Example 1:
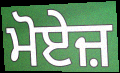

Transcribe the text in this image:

ਮੋਏਜ਼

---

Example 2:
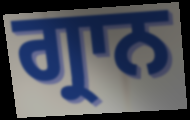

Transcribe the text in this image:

ਗ੍ਰਾਨ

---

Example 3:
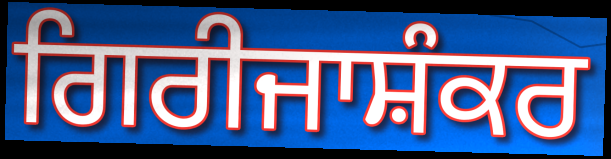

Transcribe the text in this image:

ਗਿਰੀਜਾਸ਼ੰਕਰ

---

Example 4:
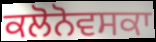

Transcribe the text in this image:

ਕਲੋਨੋਵਸਕਾ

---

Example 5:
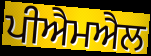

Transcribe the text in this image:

ਪੀਐਮਐਲ